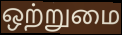
ஒற்றுமை